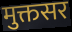
मुक्तसर